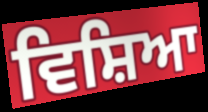
ਵਿਸ਼ਿਆ